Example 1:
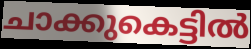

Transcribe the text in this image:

ചാക്കുകെട്ടിൽ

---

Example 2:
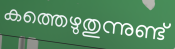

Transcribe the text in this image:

കത്തെഴുതുന്നുണ്ട്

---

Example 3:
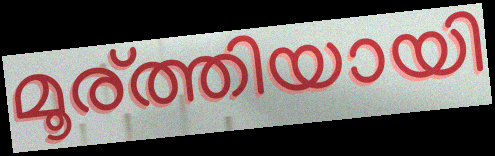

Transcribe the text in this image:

മൂര്ത്തിയായി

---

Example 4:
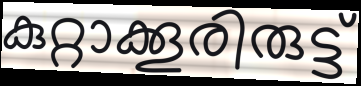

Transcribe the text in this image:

കുറ്റാക്കൂരിരുട്ട്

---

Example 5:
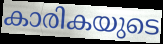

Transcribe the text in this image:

കാരികയുടെ